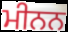
ਮੀਨਨ